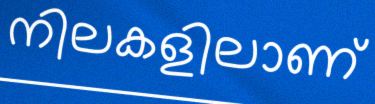
നിലകളിലാണ്